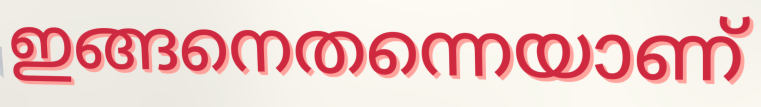
ഇങ്ങനെതന്നെയാണ്